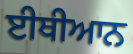
ਈਥੀਆਨ